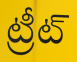
ట్రీట్